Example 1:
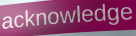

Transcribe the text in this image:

acknowledge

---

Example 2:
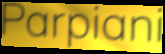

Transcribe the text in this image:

Parpiani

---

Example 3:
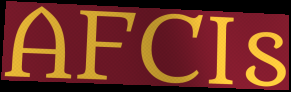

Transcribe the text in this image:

AFCIs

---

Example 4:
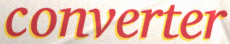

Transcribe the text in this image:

converter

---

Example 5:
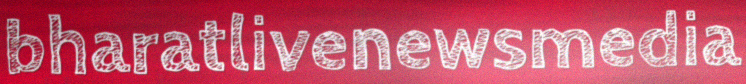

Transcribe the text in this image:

bharatlivenewsmedia